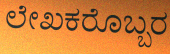
ಲೇಖಕರೊಬ್ಬರ